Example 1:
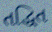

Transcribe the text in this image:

તદ્ધિત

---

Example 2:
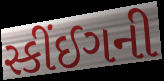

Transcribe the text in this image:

સ્કીંઈગની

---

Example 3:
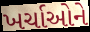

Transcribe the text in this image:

ખર્ચાઓને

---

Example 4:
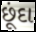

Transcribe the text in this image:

છૂંદા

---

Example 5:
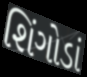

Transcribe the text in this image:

શિંગોડાં